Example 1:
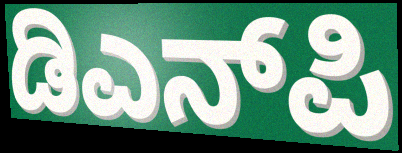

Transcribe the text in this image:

ಡಿಎನ್‌ಪಿ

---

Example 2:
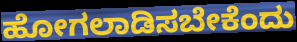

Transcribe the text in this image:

ಹೋಗಲಾಡಿಸಬೇಕೆಂದು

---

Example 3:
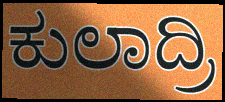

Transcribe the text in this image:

ಕುಲಾದ್ರಿ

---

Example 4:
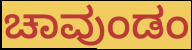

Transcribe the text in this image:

ಚಾವುಂಡಂ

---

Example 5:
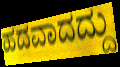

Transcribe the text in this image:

ಹದವಾದದ್ದು